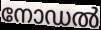
നോഡൽ